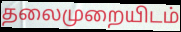
தலைமுறையிடம்